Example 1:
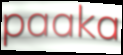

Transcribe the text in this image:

paaka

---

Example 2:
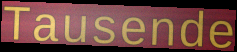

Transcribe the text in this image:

Tausende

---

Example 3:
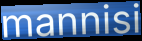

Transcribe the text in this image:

mannisi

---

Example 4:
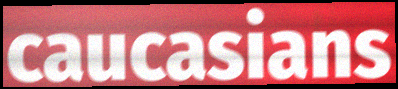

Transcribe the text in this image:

caucasians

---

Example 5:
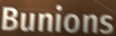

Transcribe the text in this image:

Bunions